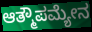
ಆತ್ಮೌಪಮ್ಯೇನ